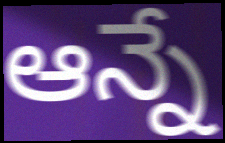
ఆన్నే